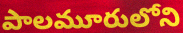
పాలమూరులోని